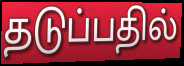
தடுப்பதில்